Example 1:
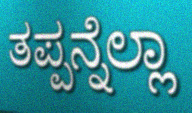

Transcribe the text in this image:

ತಪ್ಪನ್ನೆಲ್ಲಾ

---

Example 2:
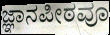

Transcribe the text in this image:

ಜ್ಞಾನಪೀಠವೂ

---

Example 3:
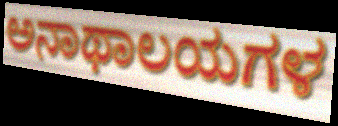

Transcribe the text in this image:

ಅನಾಥಾಲಯಗಳ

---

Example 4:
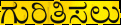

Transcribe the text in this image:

ಗುರಿತಿಸಲು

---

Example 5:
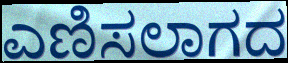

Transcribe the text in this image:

ಎಣಿಸಲಾಗದ